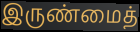
இருண்மைத்